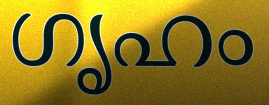
ഗൃഹം